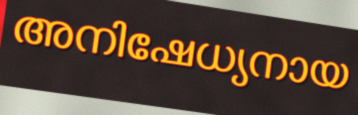
അനിഷേധ്യനായ